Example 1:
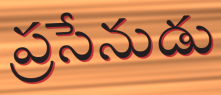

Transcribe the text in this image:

ప్రసేనుడు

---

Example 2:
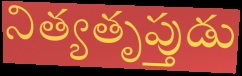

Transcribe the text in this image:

నిత్యతృప్తుడు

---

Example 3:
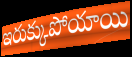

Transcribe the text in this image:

ఇరుక్కుపోయాయి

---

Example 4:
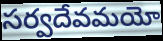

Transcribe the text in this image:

సర్వదేవమయో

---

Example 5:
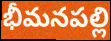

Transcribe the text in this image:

భీమనపల్లి